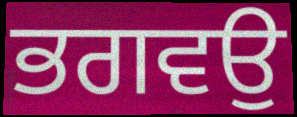
ਭਗਵਉ